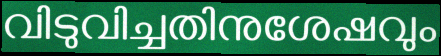
വിടുവിച്ചതിനുശേഷവും